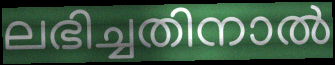
ലഭിച്ചതിനാൽ